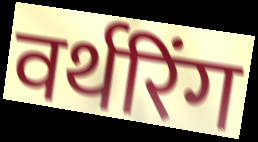
वर्थरिंग